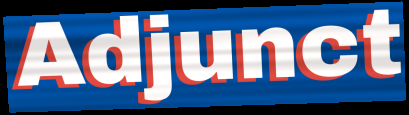
Adjunct